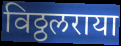
विठ्ठलराया